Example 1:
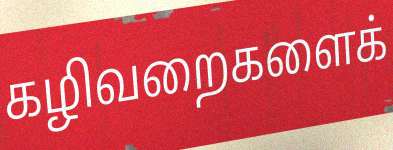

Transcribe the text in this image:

கழிவறைகளைக்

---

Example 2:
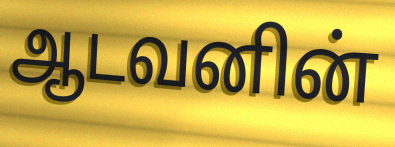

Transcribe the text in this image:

ஆடவனின்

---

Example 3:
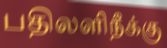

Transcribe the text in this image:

பதிலளிநீக்கு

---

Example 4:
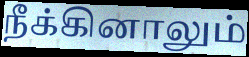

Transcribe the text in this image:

நீக்கினாலும்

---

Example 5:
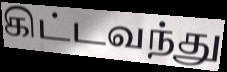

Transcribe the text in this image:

கிட்டவந்து